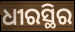
ଧୀରସ୍ଥିର